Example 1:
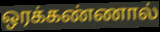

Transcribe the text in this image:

ஒரக்கண்ணால்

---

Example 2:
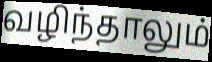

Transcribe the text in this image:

வழிந்தாலும்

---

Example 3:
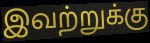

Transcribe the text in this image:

இவற்றுக்கு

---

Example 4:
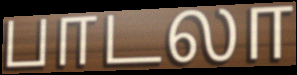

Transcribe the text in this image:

பாடலா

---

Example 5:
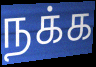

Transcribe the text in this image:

நக்க